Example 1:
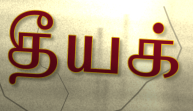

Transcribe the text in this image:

தீயக்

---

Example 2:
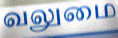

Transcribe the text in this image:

வலுமை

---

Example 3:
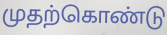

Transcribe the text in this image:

முதற்கொண்டு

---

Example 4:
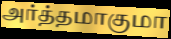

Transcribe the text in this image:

அர்த்தமாகுமா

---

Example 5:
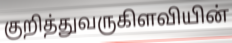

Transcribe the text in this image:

குறித்துவருகிளவியின்